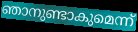
ഞാനുണ്ടാകുമെന്ന്